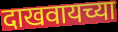
दाखवायच्या